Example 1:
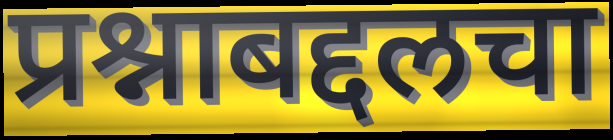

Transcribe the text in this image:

प्रश्नाबद्दलचा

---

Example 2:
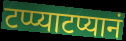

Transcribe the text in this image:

टप्प्याटप्यानं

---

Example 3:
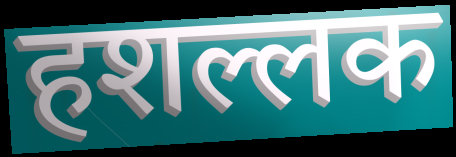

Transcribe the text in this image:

हशल्लक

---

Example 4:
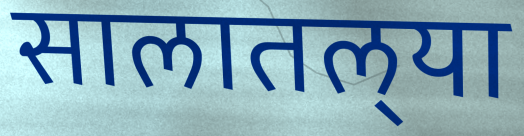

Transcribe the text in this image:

सालातल्या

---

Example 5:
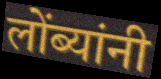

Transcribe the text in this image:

लोंब्यांनी